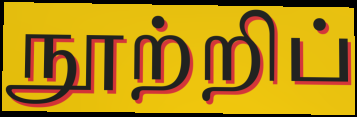
நூற்றிப்